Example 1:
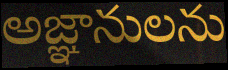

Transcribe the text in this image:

అజ్ఞానులను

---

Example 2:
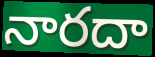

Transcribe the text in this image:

నారదా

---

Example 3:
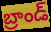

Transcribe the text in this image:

బ్రాండ్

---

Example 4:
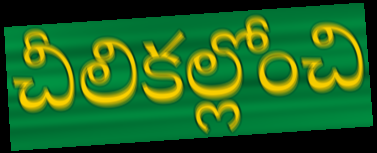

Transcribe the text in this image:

చీలికల్లోంచి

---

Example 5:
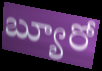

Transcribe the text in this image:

బ్యూరో